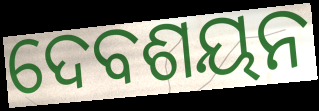
ଦେବଶୟନ